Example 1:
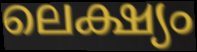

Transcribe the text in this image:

ലെക്ഷ്യം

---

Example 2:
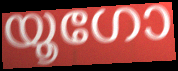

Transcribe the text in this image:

യൂഗോ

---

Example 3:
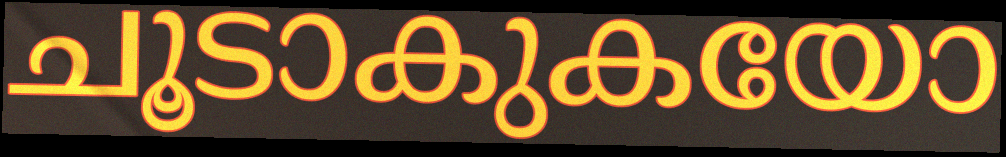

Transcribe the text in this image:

ചൂടാകുകയോ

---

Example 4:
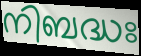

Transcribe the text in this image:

നിബദ്ധഃ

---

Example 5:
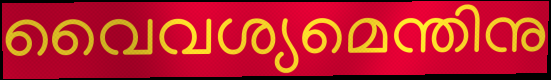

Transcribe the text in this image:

വൈവശ്യമെന്തിനു